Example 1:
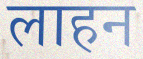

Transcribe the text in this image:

लाहन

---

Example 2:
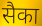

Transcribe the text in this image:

सैका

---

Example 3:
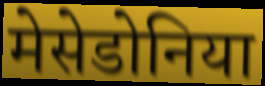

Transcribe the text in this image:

मेसेडोनिया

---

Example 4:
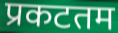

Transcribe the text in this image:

प्रकटतम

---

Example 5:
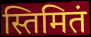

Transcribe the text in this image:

स्तिमितं